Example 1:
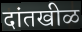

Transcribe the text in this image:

दांतखीळ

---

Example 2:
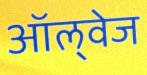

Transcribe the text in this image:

ऑल्वेज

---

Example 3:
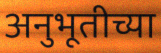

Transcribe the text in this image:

अनुभूतीच्या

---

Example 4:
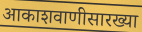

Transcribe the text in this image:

आकाशवाणीसारख्या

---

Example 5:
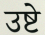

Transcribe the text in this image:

उष्टे